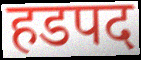
हडपद